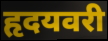
हृदयवरी